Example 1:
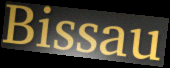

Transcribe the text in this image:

Bissau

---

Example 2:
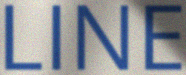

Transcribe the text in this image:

LINE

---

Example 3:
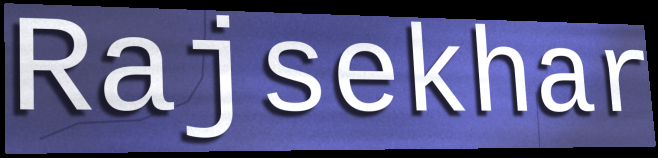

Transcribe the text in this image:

Rajsekhar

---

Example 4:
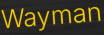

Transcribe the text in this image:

Wayman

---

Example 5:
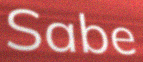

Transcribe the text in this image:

Sabe